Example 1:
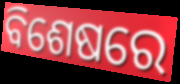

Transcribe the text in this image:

ବିଶେଷରେ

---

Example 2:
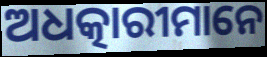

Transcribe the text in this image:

ଅଧତ୍କାରୀମାନେ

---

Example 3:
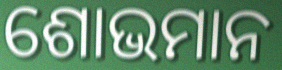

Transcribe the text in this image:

ଶୋଭମାନ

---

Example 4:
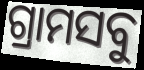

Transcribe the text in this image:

ଗ୍ରାମସବୁ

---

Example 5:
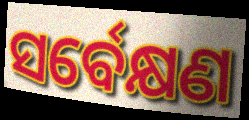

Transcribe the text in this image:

ସର୍ବେକ୍ଷଣ